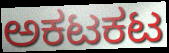
ಅಕಟಕಟ